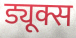
ड्यूक्स